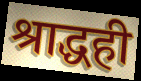
श्राद्धही